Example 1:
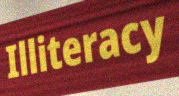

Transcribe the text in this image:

Illiteracy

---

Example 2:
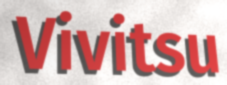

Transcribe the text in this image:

Vivitsu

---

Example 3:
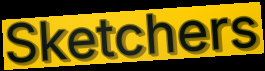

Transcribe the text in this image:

Sketchers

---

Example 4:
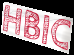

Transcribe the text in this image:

HBIC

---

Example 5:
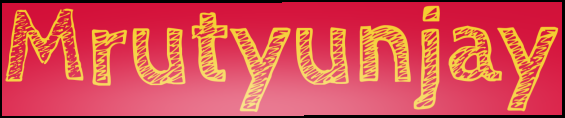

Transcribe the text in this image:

Mrutyunjay